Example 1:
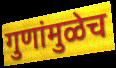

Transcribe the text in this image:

गुणांमुळेच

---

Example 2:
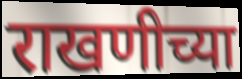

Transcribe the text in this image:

राखणीच्या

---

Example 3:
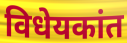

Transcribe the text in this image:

विधेयकांत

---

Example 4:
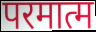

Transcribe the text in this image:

परमात्म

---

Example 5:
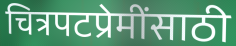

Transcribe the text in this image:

चित्रपटप्रेमींसाठी